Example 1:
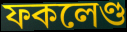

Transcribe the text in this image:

ফকলেণ্ড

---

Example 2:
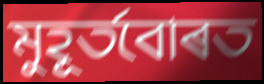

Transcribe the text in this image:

মুহূৰ্তবোৰত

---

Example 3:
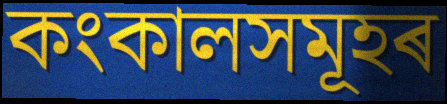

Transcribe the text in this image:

কংকালসমূহৰ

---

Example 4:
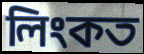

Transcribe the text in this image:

লিংকত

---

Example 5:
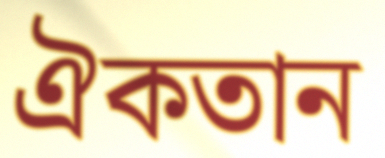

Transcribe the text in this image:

ঐকতান